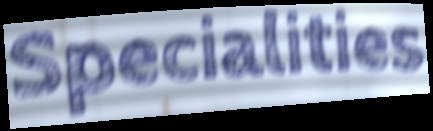
Specialities